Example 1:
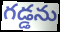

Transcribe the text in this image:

గడ్డను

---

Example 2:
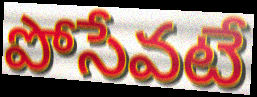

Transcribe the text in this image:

పోసేవటే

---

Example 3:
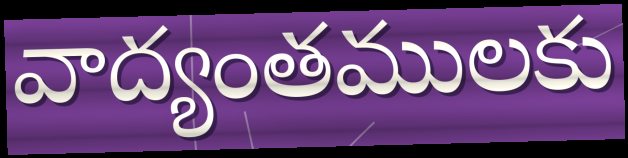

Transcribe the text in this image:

వాద్యంతములకు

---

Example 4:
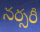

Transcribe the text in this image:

నర్సరీ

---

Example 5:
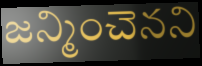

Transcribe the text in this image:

జన్మించెనని